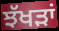
ਝੱਖੜਾਂ